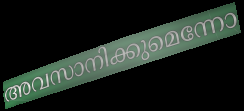
അവസാനിക്കുമെന്നോ